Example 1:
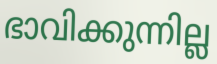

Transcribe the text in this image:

ഭാവിക്കുന്നില്ല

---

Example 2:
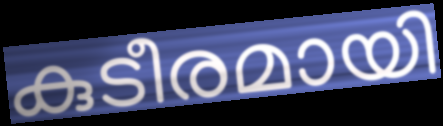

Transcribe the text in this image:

കുടീരമായി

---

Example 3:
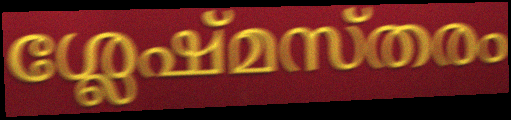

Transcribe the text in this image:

ശ്ലേഷ്മസ്തരം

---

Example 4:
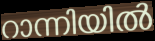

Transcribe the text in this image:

റാന്നിയിൽ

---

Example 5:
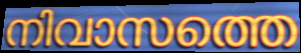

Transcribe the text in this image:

നിവാസത്തെ